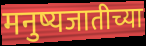
मनुष्यजातीच्या